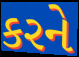
કરને